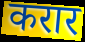
करार